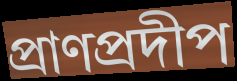
প্রাণপ্রদীপ